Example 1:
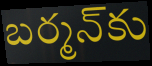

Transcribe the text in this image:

బర్మన్‌కు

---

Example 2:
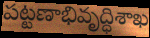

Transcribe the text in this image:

పట్టణాభివృద్ధిశాఖ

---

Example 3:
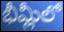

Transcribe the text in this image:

భీమ్లీలో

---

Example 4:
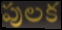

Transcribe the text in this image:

పులక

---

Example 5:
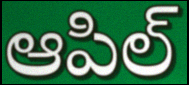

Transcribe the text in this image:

ఆపిల్